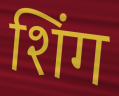
शिंग